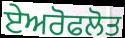
ਏਅਰੋਫਲੋਤ